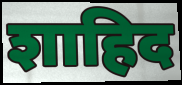
शाहिद